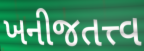
ખનીજતત્ત્વ